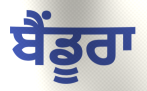
ਬੈਂਡੂਰਾ